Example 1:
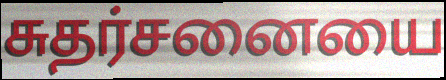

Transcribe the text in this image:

சுதர்சனையை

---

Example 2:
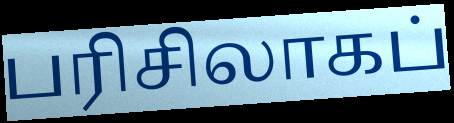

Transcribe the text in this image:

பரிசிலாகப்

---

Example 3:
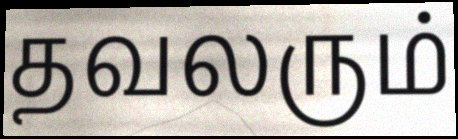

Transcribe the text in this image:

தவலரும்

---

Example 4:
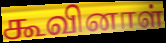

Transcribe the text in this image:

கூவினாள்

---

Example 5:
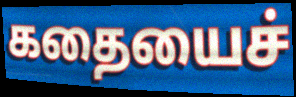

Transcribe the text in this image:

கதையைச்